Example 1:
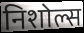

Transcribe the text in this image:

निशोल्स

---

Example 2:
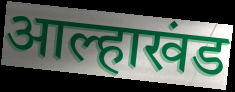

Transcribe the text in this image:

आल्हाखंड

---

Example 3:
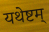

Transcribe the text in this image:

यथेष्टम्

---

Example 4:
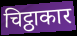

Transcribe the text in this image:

चिट्ठाकार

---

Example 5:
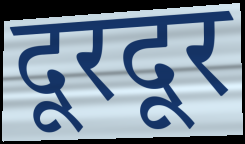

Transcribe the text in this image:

दूरदूर